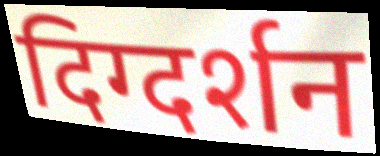
दिग्दर्शन